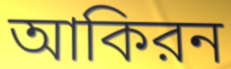
আকিরন